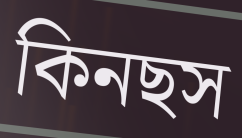
কিনছস